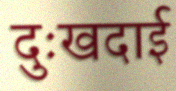
दुःखदाई